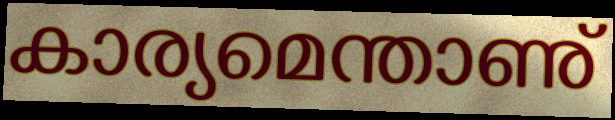
കാര്യമെന്താണു്